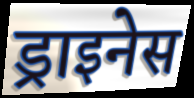
ड्राइनेस